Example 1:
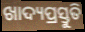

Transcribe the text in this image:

ଖାଦ୍ୟପ୍ରସ୍ତୁତି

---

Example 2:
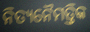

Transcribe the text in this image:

ନିତ୍ୟନୈମତ୍ତିକ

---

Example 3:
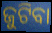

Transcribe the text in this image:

ଜୁଟିବା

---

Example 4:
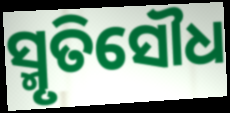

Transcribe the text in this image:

ସ୍ମୃତିସୌଧ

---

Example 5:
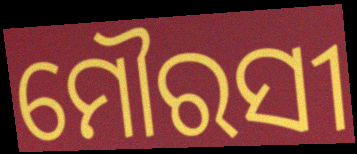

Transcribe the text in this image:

ମୌରସୀ